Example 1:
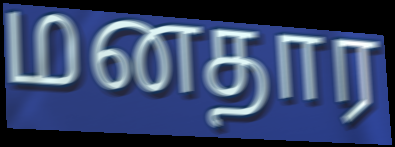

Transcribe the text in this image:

மனதார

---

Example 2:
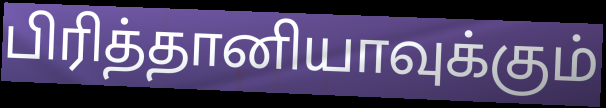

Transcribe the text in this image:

பிரித்தானியாவுக்கும்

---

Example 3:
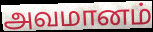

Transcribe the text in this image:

அவமானம்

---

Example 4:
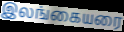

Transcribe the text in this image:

இலங்கையரை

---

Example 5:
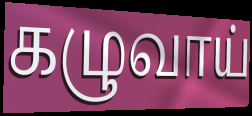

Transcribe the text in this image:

கழுவாய்